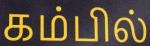
கம்பில்